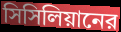
সিসিলিয়ানের